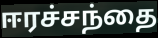
ஈரச்சந்தை